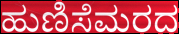
ಹುಣಿಸೆಮರದ